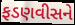
ફડણવીસને